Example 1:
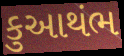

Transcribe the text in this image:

કુઆથંભ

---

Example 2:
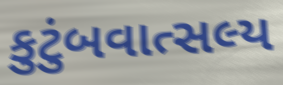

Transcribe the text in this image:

કુટુંબવાત્સલ્ય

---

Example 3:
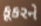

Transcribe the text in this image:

કૂકરને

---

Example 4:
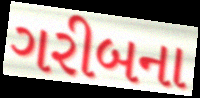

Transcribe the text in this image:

ગરીબના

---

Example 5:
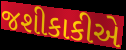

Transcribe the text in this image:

જશીકાકીએ